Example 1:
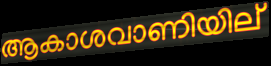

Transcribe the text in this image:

ആകാശവാണിയില്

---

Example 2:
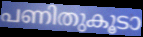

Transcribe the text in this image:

പണിതുകൂടാ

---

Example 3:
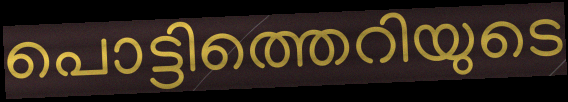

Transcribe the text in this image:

പൊട്ടിത്തെറിയുടെ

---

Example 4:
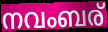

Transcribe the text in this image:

നവംബര്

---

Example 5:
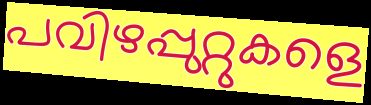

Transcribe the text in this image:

പവിഴപ്പുറ്റുകളെ